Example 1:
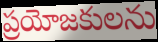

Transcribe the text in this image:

ప్రయోజకులను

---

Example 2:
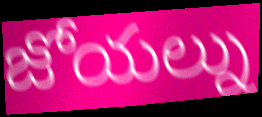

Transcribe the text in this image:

జోయల్ను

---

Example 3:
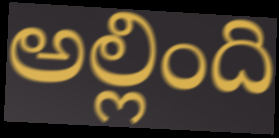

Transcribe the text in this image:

అల్లింది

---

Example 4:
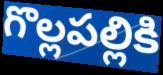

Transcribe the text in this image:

గొల్లపల్లికి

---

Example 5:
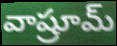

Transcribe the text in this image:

వాష్రూమ్